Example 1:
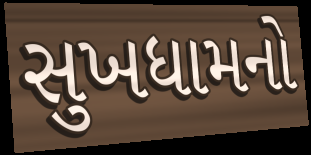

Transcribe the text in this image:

સુખધામનો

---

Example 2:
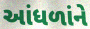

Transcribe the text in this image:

આંધળાંને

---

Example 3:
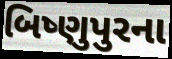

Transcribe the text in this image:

બિષ્ણુપુરના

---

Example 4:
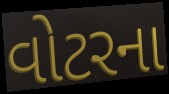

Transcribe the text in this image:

વોટરના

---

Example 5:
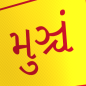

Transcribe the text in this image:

મુઞ્ચં